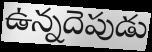
ఉన్నదెపుడు